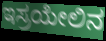
ಇಸ್ರಯೇಲಿನ